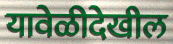
यावेळीदेखील